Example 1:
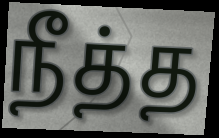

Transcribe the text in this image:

நீத்த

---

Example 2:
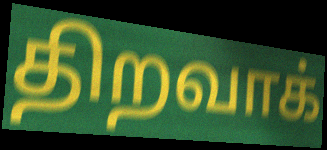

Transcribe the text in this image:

திறவாக்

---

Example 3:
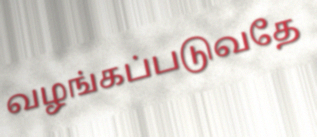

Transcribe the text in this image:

வழங்கப்படுவதே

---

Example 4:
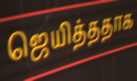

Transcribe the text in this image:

ஜெயித்ததாக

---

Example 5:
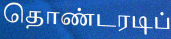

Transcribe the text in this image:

தொண்டரடிப்